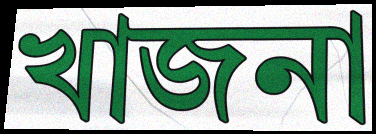
খাজনা